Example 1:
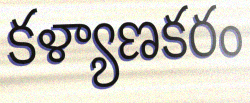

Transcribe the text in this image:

కళ్యాణకరం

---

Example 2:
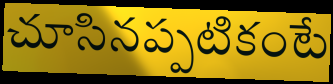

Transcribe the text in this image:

చూసినప్పటికంటే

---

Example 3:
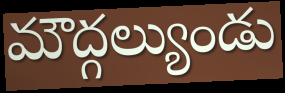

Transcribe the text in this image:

మౌద్గల్యుండు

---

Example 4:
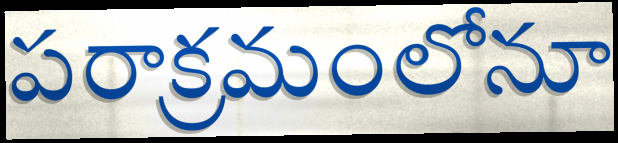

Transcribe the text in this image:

పరాక్రమంలోనూ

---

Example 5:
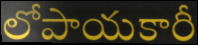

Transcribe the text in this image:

లోపాయకారీ